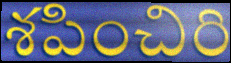
శపించిరి